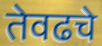
तेवढचे